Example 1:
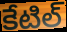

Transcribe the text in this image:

కేటిల్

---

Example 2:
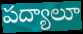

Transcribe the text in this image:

పద్యాలూ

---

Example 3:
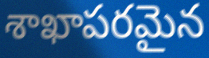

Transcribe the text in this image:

శాఖాపరమైన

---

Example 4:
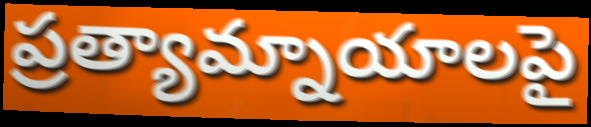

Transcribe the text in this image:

ప్రత్యామ్నాయాలపై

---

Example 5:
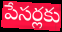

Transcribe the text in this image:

పేసర్లకు